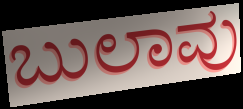
ಬುಲಾವು